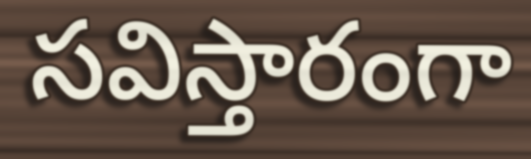
సవిస్తారంగా